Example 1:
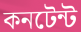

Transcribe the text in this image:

কনটেন্ট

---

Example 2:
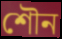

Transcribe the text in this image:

শৌন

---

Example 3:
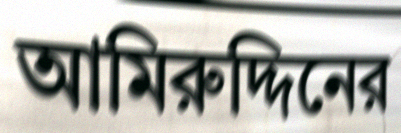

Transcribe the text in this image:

আমিরুদ্দিনের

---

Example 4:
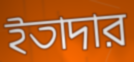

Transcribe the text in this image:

ইতাদার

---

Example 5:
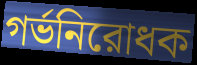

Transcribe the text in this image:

গর্ভনিরোধক